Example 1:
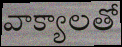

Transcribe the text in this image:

వాక్యాలతో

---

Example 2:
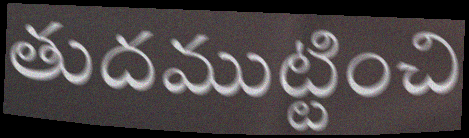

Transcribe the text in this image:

తుదముట్టించి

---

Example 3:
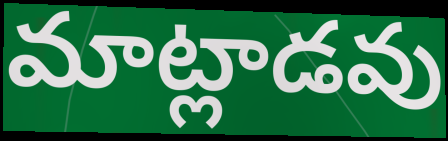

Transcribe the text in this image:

మాట్లాడవు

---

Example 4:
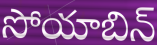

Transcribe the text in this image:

సోయాబిన్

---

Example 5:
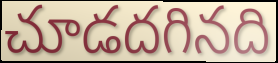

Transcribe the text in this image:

చూడదగినది